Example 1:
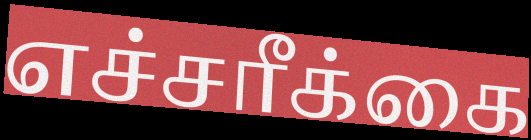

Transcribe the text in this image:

எச்சரீக்கை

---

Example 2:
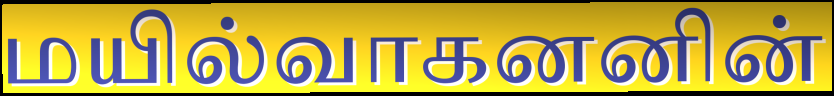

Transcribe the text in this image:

மயில்வாகனனின்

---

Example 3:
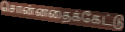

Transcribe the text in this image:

சொன்னதைக்கேட்டு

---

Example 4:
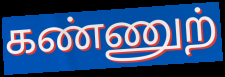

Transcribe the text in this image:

கண்ணுற்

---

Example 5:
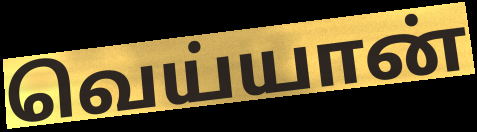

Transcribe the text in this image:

வெய்யான்